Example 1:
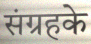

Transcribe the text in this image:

संग्रहके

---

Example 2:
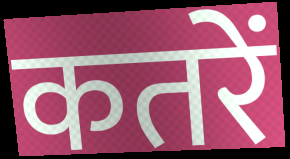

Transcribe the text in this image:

कतरें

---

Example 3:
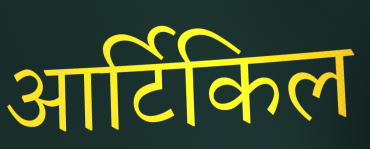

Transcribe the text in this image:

आर्टिकिल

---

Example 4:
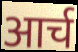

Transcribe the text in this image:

आर्च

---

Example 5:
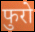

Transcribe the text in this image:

फुरो